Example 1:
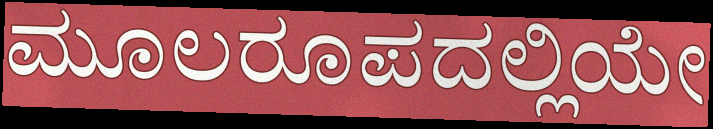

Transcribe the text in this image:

ಮೂಲರೂಪದಲ್ಲಿಯೇ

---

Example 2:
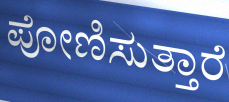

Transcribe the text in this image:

ಪೋಣಿಸುತ್ತಾರೆ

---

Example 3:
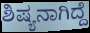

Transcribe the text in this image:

ಶಿಷ್ಯನಾಗಿದ್ದೆ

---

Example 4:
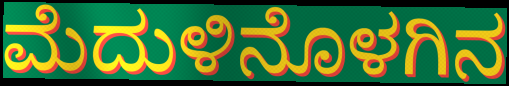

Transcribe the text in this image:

ಮೆದುಳಿನೊಳಗಿನ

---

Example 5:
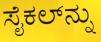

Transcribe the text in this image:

ಸೈಕಲ್‌ನ್ನು